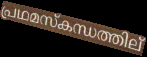
പ്രഥമസ്കന്ധത്തില്